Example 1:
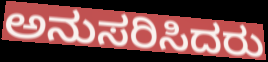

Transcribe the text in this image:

ಅನುಸರಿಸಿದರು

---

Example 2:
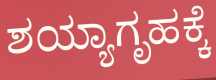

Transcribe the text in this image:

ಶಯ್ಯಾಗೃಹಕ್ಕೆ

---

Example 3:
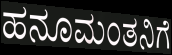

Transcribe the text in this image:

ಹನೂಮಂತನಿಗೆ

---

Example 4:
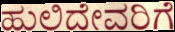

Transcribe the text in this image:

ಹುಲಿದೇವರಿಗೆ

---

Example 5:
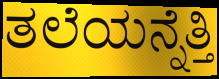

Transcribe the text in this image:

ತಲೆಯನ್ನೆತ್ತಿ